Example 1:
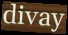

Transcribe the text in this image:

divay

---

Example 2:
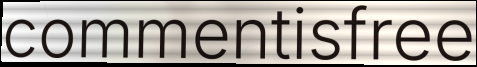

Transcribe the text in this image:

commentisfree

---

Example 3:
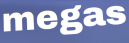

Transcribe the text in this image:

megas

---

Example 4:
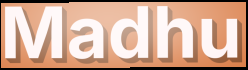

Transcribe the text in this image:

Madhu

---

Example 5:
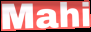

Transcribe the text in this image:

Mahi